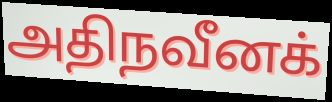
அதிநவீனக்